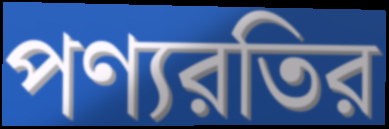
পণ্যরতির